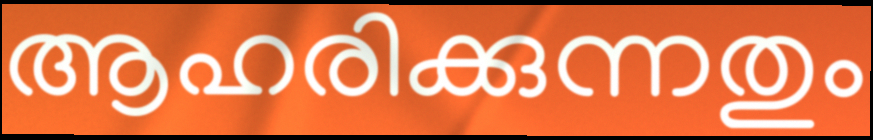
ആഹരിക്കുന്നതും